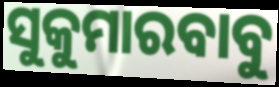
ସୁକୁମାରବାବୁ